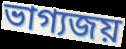
ভাগ্যজয়